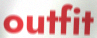
outfit